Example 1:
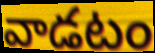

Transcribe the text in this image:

వాడటం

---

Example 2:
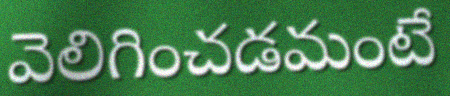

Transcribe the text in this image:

వెలిగించడమంటే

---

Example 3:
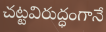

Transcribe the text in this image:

చట్టవిరుద్ధంగానే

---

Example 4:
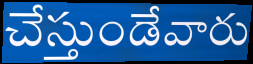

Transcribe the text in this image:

చేస్తుండేవారు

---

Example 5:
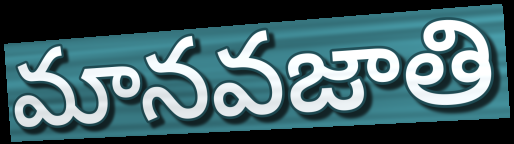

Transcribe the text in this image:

మానవజాతి